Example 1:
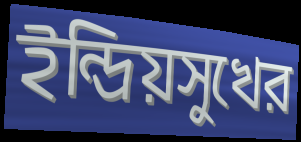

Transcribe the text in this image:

ইন্দ্রিয়সুখের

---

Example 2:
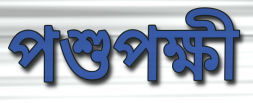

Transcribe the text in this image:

পশুপক্ষী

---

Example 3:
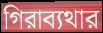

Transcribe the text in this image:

গিরাব্যথার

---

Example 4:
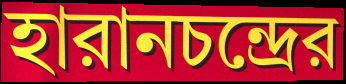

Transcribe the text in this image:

হারানচন্দ্রের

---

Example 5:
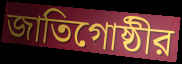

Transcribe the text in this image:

জাতিগোষ্ঠীর